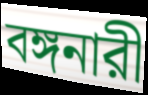
বঙ্গনারী